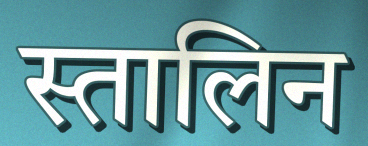
स्तालिन